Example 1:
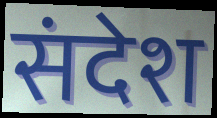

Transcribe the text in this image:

संदेश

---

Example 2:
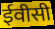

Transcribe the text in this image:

ईवीसी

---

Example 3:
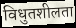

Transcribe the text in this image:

विधुतशीलता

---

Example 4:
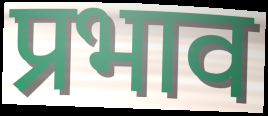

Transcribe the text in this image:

प्रभाव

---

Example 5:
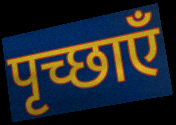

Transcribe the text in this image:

पृच्छाएँ